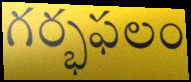
గర్భఫలం